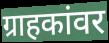
ग्राहकांवर